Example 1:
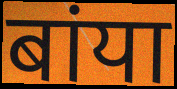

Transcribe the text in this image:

बांया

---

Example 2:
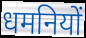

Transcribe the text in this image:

धमनियों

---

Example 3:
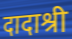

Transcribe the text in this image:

दादाश्री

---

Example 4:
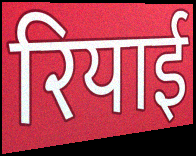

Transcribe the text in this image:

रियाई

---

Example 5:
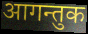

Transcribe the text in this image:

आगन्तुक